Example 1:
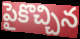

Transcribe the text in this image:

పైకొచ్చిన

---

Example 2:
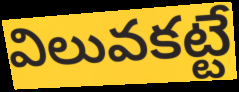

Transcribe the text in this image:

విలువకట్టే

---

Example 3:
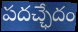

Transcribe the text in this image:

పదచ్ఛేదం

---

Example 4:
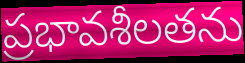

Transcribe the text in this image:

ప్రభావశీలతను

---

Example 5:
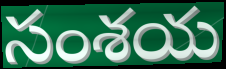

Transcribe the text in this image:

సంశయ